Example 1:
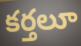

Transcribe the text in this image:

కర్తలూ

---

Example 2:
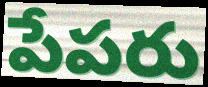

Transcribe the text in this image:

పేపరు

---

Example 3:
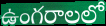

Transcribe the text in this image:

ఉంగరాలలో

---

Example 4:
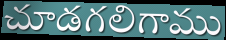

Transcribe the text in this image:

చూడగలిగాము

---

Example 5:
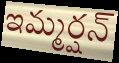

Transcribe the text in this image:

ఇమ్మర్షన్